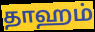
தாஹம்